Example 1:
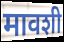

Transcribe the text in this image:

मावशी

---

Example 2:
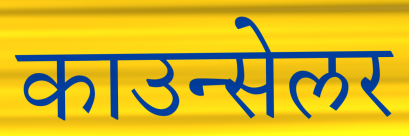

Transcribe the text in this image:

काउन्सेलर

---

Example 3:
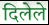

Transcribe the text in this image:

दिलेले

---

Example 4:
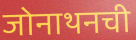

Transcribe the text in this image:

जोनाथनची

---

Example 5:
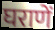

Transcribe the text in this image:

घराणें